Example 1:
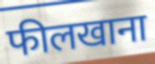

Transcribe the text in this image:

फीलखाना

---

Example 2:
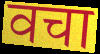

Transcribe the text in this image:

वचा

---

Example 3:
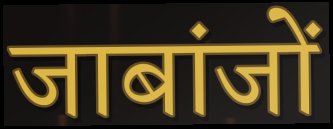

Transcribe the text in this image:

जाबांजों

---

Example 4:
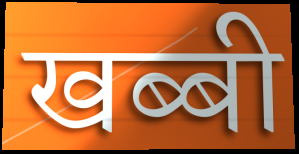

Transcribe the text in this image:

खब्बी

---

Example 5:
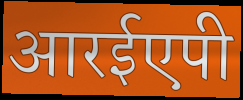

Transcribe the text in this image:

आरईएपी